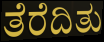
ತೆರೆದಿತು